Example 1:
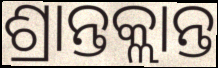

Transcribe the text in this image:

ଶ୍ରାନ୍ତକ୍ଲାନ୍ତ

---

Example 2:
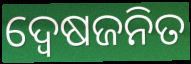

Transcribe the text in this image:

ଦ୍ଵେଷଜନିତ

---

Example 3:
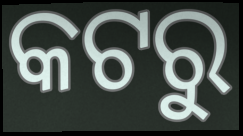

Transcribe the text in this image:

କଟରୁ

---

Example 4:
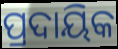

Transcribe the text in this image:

ପ୍ରଦାୟିକ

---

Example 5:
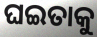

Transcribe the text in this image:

ଘଇତାକୁ